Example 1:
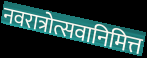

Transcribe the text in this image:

नवरात्रोत्सवानिमित्त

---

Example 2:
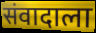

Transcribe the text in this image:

संवादाला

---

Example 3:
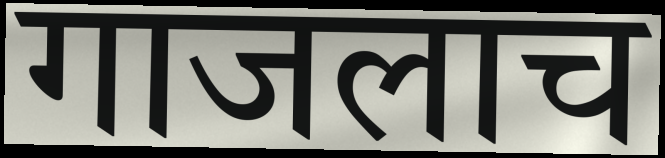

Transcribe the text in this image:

गाजलाच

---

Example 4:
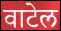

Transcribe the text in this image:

वाटेल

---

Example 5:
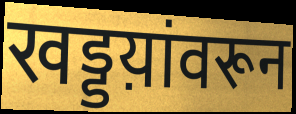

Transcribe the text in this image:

खड्डय़ांवरून